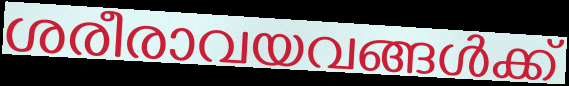
ശരീരാവയവങ്ങൾക്ക്